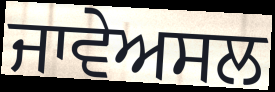
ਜਾਵੇਅਸਲ